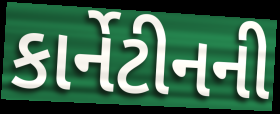
કાર્નેટીનની